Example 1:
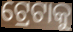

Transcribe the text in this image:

ଟ୍ରେଟାକୁ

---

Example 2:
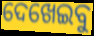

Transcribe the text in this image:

ଦେଖେଇବୁ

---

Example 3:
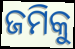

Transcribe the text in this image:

ଜମିକୁ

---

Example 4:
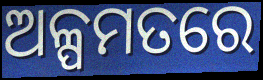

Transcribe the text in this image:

ଅଳ୍ପମତରେ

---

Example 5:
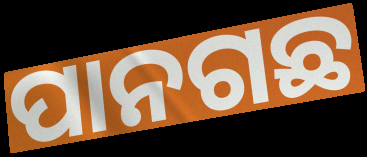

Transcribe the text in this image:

ପାନଗଛ